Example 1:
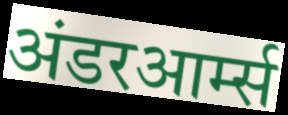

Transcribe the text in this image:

अंडरआर्म्‍स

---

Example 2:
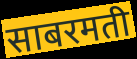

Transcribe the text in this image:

साबरमती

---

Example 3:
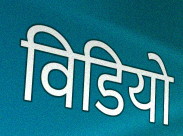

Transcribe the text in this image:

विडियो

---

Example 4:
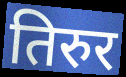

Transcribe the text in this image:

तिरुर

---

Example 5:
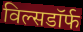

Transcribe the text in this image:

विल्सडॉर्फ